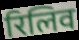
रिलिव